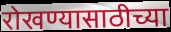
रोखण्यासाठीच्या